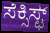
ಸೆಕ್ಸಿಸ್ಟ್